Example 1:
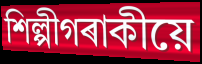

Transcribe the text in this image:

শিল্পীগৰাকীয়ে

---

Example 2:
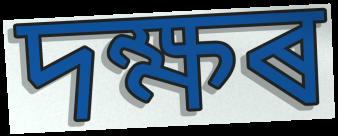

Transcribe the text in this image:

দক্ষৰ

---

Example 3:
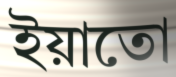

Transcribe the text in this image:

ইয়াতো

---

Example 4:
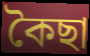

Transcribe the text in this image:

কৈছা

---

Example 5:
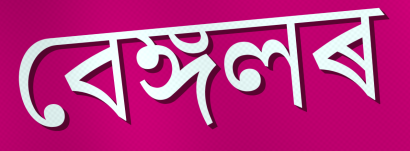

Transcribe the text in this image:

বেঙ্গলৰ